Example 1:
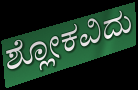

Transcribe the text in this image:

ಶ್ಲೋಕವಿದು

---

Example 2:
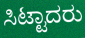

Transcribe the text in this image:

ಸಿಟ್ಟಾದರು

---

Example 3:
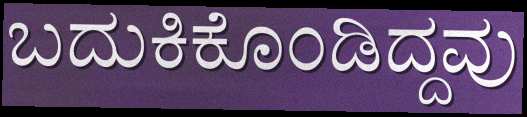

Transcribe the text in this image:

ಬದುಕಿಕೊಂಡಿದ್ದವು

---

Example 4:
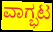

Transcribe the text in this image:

ವಾಗ್ಭಟ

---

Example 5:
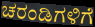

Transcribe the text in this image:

ಚರಂಡಿಗಳಿಗೆ